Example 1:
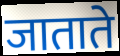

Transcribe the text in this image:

जाताते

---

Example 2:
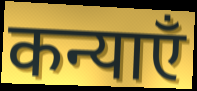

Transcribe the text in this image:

कन्याएँ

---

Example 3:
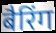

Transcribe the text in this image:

बैरिंग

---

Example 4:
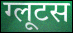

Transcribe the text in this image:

ग्लूटस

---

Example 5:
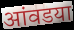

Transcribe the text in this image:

आंवडया